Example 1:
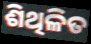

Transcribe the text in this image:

ଶିଥିଳିତ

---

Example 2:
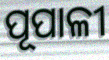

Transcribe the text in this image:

ପୂପାଳୀ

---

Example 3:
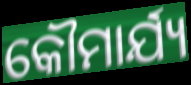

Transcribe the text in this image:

କୌମାର୍ଯ୍ୟ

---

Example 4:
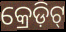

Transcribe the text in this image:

କ୍ରେଡ଼ିଟ୍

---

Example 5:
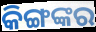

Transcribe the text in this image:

କିଙ୍ଗଙ୍କର